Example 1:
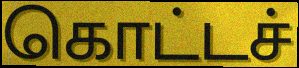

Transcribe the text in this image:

கொட்டச்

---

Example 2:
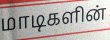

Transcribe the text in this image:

மாடிகளின்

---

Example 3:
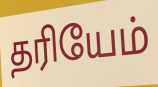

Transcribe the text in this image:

தரியேம்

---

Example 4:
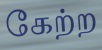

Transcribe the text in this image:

கேற்ற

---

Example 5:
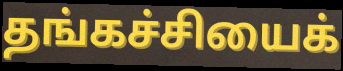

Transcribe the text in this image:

தங்கச்சியைக்